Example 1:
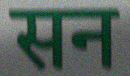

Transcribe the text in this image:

सन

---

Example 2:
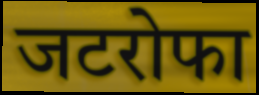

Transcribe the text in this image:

जटरोफा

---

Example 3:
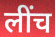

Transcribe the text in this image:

लींच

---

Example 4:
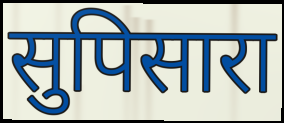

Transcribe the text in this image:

सुपिसारा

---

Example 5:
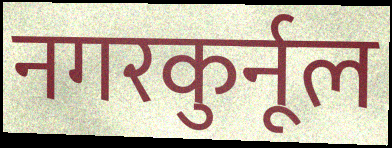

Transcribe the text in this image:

नगरकुर्नूल